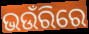
ଭଉଁରିରେ